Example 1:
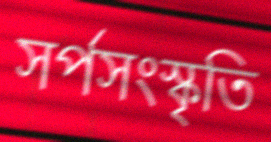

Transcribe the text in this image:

সর্পসংস্কৃতি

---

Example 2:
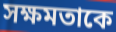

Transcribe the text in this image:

সক্ষমতাকে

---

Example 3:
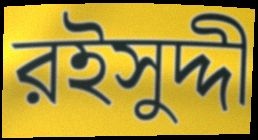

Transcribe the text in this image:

রইসুদ্দী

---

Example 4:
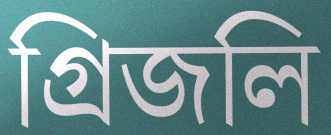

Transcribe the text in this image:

গ্রিজলি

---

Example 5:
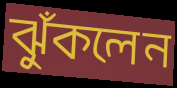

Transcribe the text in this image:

ঝুঁকলেন